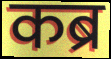
कब्र